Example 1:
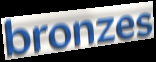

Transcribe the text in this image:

bronzes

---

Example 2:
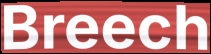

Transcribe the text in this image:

Breech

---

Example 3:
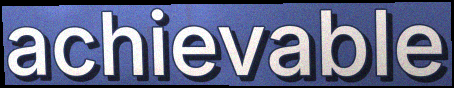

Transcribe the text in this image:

achievable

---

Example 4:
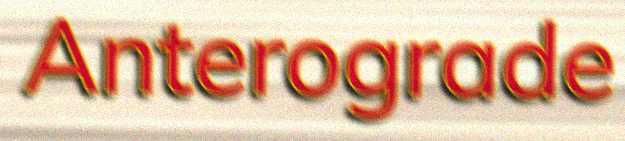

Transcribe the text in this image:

Anterograde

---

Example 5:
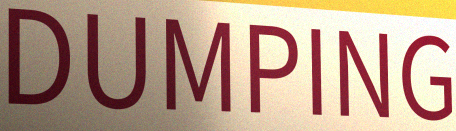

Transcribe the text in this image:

DUMPING